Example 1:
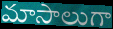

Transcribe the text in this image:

మాసాలుగా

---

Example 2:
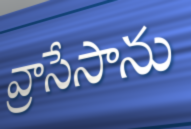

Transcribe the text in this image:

వ్రాసేసాను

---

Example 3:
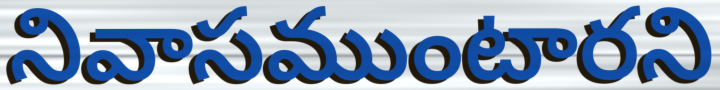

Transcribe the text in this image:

నివాసముంటారని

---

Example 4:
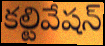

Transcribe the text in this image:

కల్టివేషన్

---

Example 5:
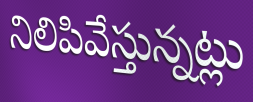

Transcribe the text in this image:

నిలిపివేస్తున్నట్లు